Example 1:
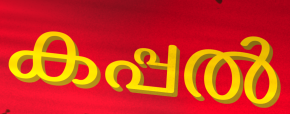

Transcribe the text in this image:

കപ്പൽ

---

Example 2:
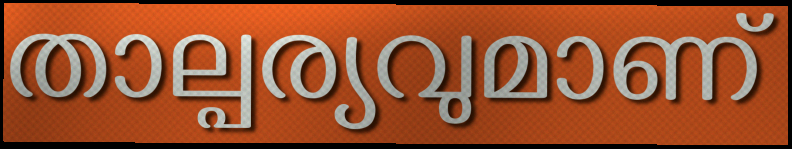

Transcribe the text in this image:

താല്പര്യവുമാണ്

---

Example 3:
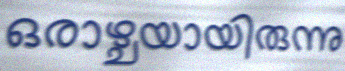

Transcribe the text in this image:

ഒരാഴ്ചയായിരുന്നു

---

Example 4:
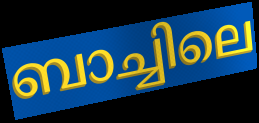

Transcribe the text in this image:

ബാച്ചിലെ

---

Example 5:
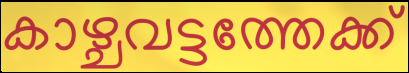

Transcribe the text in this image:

കാഴ്ചവട്ടത്തേക്ക്